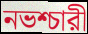
নভশ্চারী